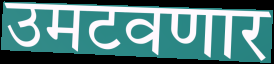
उमटवणार